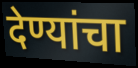
देण्यांचा